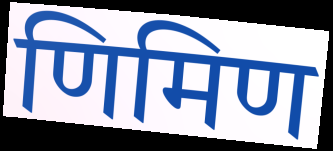
णिमिण